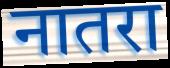
नातरा